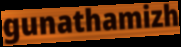
gunathamizh